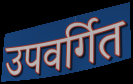
उपवर्गित